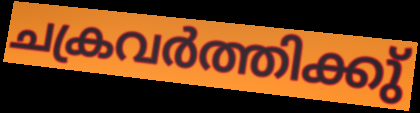
ചക്രവർത്തിക്കു്